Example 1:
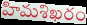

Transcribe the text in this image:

హిమశిఖరం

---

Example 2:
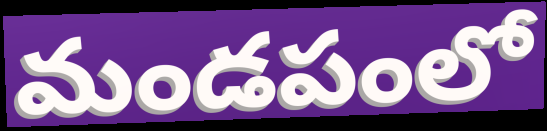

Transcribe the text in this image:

మండపంలో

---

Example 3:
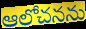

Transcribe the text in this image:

ఆలోచనను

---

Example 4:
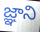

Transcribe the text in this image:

జ్ఞాని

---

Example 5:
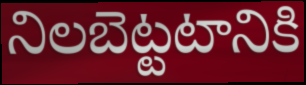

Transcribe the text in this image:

నిలబెట్టటానికి